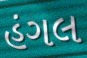
હંગલ